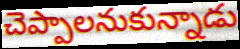
చెప్పాలనుకున్నాడు